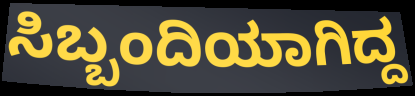
ಸಿಬ್ಬಂದಿಯಾಗಿದ್ದ